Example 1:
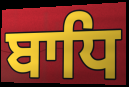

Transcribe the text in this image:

ਬਾਧਿ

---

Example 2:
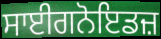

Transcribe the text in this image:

ਸਾਈਗਨੋਇਡਜ਼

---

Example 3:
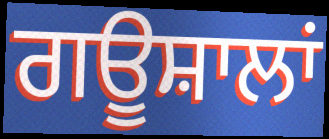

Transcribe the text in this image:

ਗਊਸ਼ਾਲਾਂ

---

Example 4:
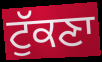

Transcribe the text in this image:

ਟੁੱਕਣਾ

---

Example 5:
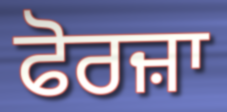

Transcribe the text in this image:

ਫੋਰਜ਼ਾ